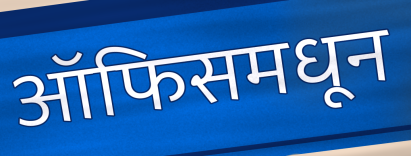
ऑफिसमधून